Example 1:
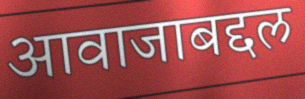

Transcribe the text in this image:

आवाजाबद्दल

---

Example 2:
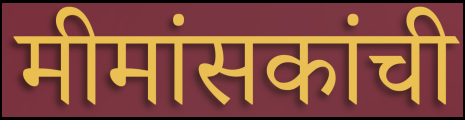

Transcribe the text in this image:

मीमांसकांची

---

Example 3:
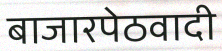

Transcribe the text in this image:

बाजारपेठवादी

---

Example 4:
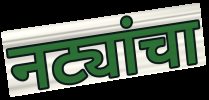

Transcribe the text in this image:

नट्यांचा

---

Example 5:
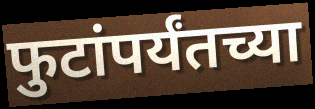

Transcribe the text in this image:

फुटांपर्यंतच्या